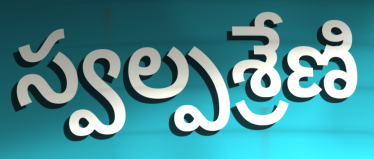
స్వల్పశ్రేణి